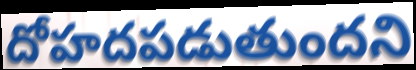
దోహదపడుతుందని